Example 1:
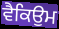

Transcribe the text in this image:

ਵੈਕਿਉਮ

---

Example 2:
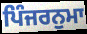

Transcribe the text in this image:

ਪਿੰਜਰਨੁਮਾ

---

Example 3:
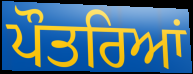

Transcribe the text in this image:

ਪੌਤਰਿਆਂ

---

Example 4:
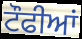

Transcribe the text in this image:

ਟੌਫੀਆਂ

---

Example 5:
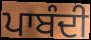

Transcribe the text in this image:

ਪਾਬੰਦੀ